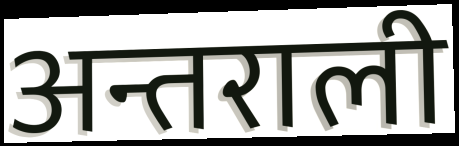
अन्तराली